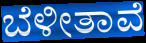
ಬೆಳೀತಾವೆ